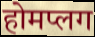
होमप्लग